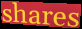
shares